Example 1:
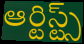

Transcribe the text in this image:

ఆర్టిస్ట్స్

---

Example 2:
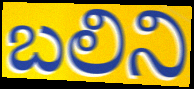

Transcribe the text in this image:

బలిని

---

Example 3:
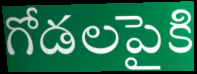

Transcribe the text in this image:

గోడలపైకి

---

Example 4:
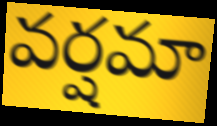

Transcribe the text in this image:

వర్షమా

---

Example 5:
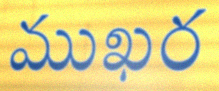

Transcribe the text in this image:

ముఖర